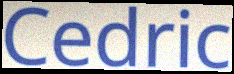
Cedric